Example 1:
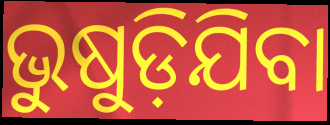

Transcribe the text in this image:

ଭୁଷୁଡ଼ିଯିବା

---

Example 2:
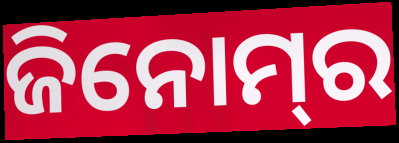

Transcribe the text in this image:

ଜିନୋମ୍‌ର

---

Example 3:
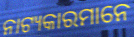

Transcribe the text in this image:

ନାଟ୍ୟକାରମାନେ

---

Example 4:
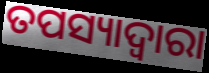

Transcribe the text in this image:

ତପସ୍ୟାଦ୍ୱାରା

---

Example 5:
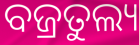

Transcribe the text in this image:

ବଜ୍ରତୁଲ୍ୟ